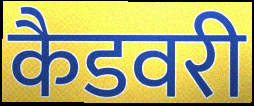
कैडवरी